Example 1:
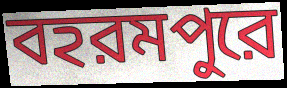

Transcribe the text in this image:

বহরমপুরে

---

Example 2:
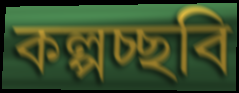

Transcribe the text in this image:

কল্পচ্ছবি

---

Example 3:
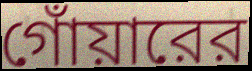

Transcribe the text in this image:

গোঁয়ারের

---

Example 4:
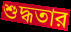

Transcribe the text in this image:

শুদ্ধতার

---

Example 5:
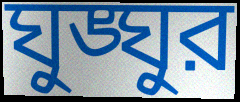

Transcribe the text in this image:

ঘুঙ্ঘুর